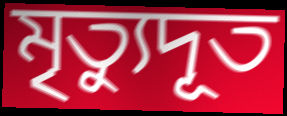
মৃত্যুদূত